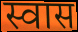
स्वास